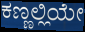
ಕಣ್ಣಲ್ಲಿಯೇ